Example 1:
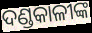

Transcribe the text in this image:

ଦଣ୍ଡକାଳୀଙ୍କ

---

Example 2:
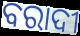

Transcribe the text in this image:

ବରାଦୀ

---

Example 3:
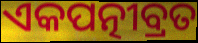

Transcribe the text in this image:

ଏକପତ୍ନୀବ୍ରତ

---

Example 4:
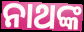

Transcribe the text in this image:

ନାଥଙ୍କ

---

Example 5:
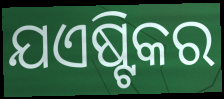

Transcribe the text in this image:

ଯଏଷ୍ଟିକର